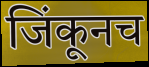
जिंकूनच